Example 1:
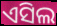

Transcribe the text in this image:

ଏସିଲ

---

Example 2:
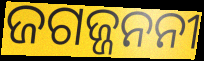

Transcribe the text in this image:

ଜଗଜ୍ଜନନୀ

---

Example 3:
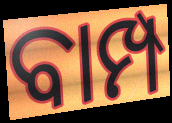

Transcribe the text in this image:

ବାମ୍ପ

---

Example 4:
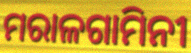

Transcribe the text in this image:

ମରାଳଗାମିନୀ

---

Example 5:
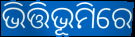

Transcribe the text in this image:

ଭିତ୍ତିଭୂମିରେ